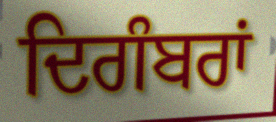
ਦਿਗੰਬਰਾਂ